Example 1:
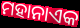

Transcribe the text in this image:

ମହାନାଏକ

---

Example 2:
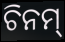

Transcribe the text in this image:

ଚିନମ୍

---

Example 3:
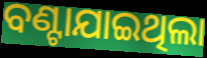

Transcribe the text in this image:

ବଣ୍ଟାଯାଇଥିଲା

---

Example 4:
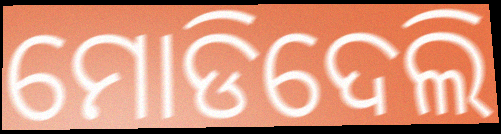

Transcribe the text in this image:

ମୋଡିଦେଲି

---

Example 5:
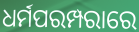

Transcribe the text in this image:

ଧର୍ମପରମ୍ପରାରେ